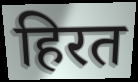
हिरत